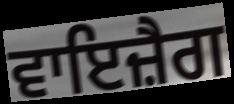
ਵਾਇਜ਼ੈਗ